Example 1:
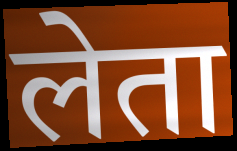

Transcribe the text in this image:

लेता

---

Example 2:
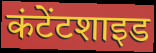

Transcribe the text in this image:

कंटेंटशाइड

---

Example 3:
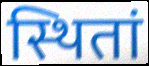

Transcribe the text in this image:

स्थितां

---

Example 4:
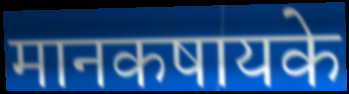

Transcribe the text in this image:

मानकषायके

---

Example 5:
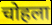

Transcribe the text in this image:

चोहला